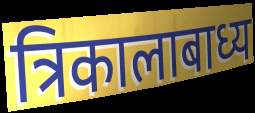
त्रिकालाबाध्य